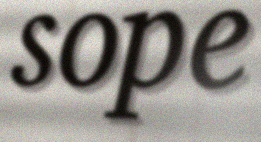
sope